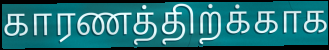
காரணத்திற்க்காக